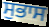
ਸੁਭਾਸ